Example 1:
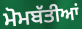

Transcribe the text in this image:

ਮੋਮਬੱਤੀਆਂ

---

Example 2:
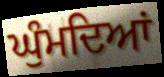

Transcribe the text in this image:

ਘੁੰਮਦਿਆਂ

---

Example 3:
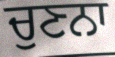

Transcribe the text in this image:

ਚੁਣਨਾ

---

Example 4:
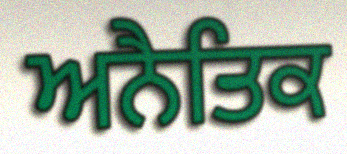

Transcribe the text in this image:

ਅਨੈਤਿਕ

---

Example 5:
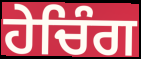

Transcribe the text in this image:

ਹੇਚਿੰਗ